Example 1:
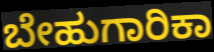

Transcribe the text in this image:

ಬೇಹುಗಾರಿಕಾ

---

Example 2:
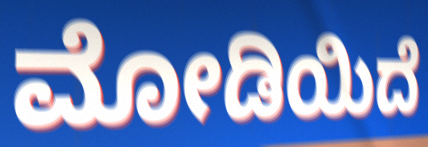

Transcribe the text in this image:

ಮೋಡಿಯಿದೆ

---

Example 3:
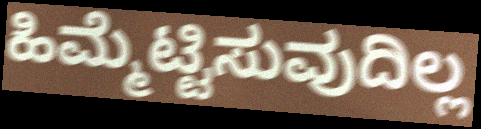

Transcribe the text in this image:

ಹಿಮ್ಮೆಟ್ಟಿಸುವುದಿಲ್ಲ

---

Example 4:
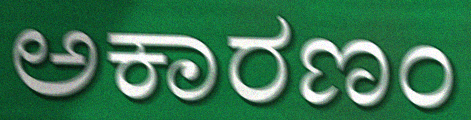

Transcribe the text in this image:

ಅಕಾರಣಂ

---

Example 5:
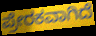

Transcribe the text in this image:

ಪ್ರೇರಕವಾಗಿದೆ